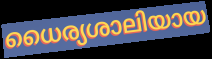
ധൈര്യശാലിയായ